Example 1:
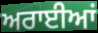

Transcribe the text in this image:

ਅਰਾਈਆਂ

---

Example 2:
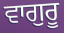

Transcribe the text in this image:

ਵਾਗੁਰੂ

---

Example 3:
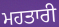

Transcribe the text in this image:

ਮਹਤਾਰੀ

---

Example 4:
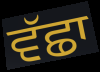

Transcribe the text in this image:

ਵੱਛਾ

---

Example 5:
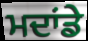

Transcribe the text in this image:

ਮਦਾਂਡੇ